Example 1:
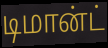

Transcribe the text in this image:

டிமான்ட்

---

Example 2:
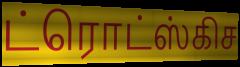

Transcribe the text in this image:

ட்ரொட்ஸ்கிச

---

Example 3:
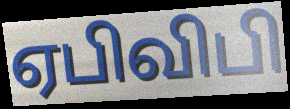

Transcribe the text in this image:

ஏபிவிபி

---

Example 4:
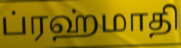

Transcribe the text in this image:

ப்ரஹ்மாதி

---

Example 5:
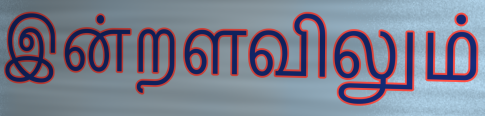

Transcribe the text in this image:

இன்றளவிலும்